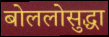
बोललोसुद्धा